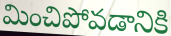
మించిపోవడానికి